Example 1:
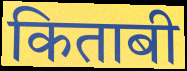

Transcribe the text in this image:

किताबी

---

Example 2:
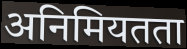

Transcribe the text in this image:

अनिमियतता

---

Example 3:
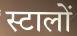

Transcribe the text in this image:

स्टालों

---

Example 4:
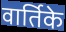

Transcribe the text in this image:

वार्तिके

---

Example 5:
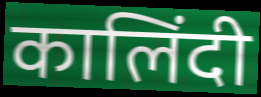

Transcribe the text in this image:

कालिंदी